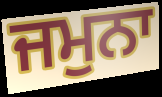
ਜਮੁਨਾ